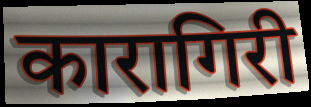
कारागिरी